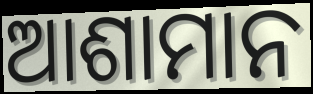
ଆଶାମାନ